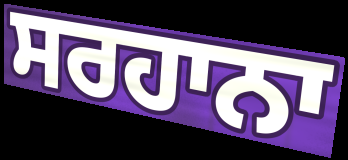
ਸਰਹਾਨਾ